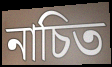
নাচিত